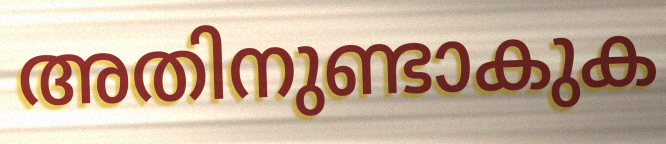
അതിനുണ്ടാകുക